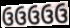
ઉઉઉઉઉ